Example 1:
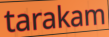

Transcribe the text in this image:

tarakam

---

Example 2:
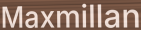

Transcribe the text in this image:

Maxmillan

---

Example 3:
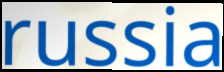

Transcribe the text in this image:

russia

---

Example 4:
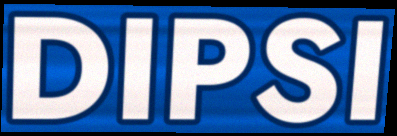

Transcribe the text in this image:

DIPSI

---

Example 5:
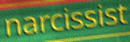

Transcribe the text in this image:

narcissist